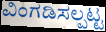
ವಿಂಗಡಿಸಲ್ಪಟ್ಟ